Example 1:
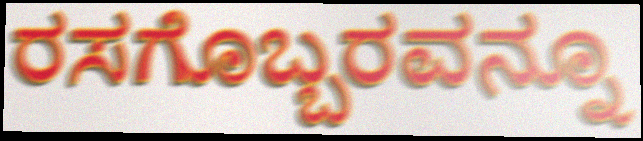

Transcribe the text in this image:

ರಸಗೊಬ್ಬರವನ್ನೂ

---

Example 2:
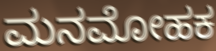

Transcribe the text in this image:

ಮನಮೋಹಕ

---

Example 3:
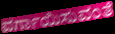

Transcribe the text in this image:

ವರ್ಗಾಯಿಸುವಂತೆ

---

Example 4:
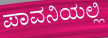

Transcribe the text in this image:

ಪಾವನಿಯಲ್ಲಿ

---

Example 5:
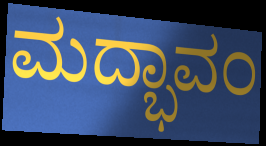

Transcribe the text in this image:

ಮದ್ಭಾವಂ